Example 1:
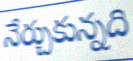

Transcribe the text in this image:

నేర్చుకున్నది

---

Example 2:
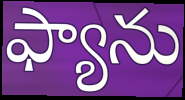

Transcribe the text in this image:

ఫ్యాను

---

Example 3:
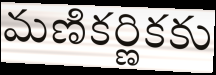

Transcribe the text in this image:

మణికర్ణికకు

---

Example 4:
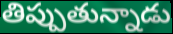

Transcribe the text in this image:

తిప్పుతున్నాడు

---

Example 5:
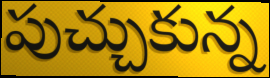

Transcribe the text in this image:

పుచ్చుకున్న